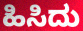
ಹಿಸಿದು